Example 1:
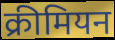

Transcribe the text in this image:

क्रीमियन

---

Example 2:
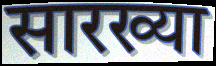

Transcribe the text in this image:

सारख्या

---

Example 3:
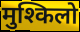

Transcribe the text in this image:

मुश्किलो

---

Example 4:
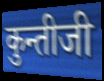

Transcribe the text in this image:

कुन्तीजी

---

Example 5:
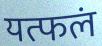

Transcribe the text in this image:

यत्फलं